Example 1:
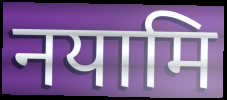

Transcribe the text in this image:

नयामि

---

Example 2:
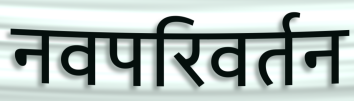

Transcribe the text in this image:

नवपरिवर्तन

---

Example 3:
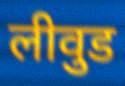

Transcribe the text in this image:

लीवुड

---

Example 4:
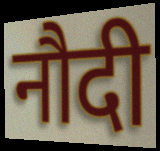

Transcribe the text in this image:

नौदी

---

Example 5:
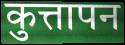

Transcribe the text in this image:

कुत्तापन